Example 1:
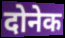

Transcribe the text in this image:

दोनेक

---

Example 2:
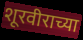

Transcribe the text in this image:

शूरवीराच्या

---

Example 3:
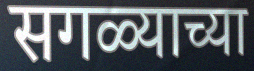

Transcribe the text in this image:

सगळ्याच्या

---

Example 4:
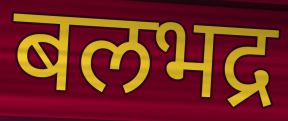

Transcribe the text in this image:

बलभद्र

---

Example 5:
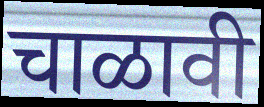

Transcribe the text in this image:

चाळावी